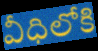
వీధిలోకి